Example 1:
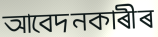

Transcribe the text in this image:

আবেদনকাৰীৰ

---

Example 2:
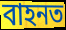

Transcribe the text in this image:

বাহনত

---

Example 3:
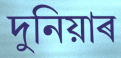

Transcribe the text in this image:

দুনিয়াৰ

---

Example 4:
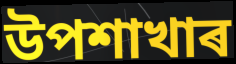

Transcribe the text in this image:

উপশাখাৰ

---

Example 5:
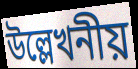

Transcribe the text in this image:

উল্লেখনীয়